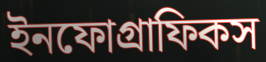
ইনফোগ্রাফিকস